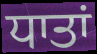
ਧਾਤਾਂ